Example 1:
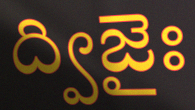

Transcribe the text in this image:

ద్విజైః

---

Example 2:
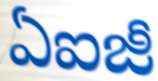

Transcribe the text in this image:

ఏఐజీ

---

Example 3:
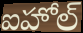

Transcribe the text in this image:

ఐహోల్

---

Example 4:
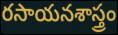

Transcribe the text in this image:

రసాయనశాస్త్రం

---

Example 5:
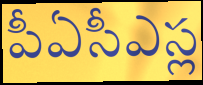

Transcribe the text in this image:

పీఏసీఎస్ల